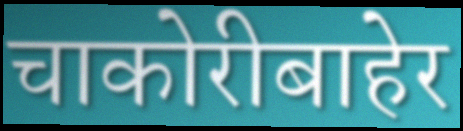
चाकोरीबाहेर